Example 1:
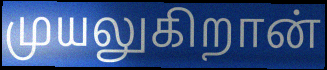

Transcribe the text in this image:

முயலுகிறான்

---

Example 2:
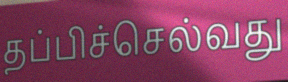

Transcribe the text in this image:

தப்பிச்செல்வது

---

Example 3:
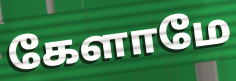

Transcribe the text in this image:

கேளாமே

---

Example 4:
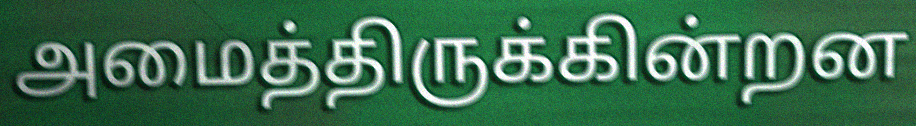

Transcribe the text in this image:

அமைத்திருக்கின்றன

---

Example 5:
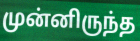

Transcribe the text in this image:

முன்னிருந்த